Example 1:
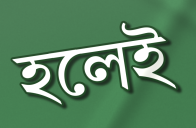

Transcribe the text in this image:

হলেই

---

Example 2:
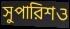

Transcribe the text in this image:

সুপারিশও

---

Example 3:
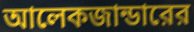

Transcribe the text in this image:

আলেকজান্ডারের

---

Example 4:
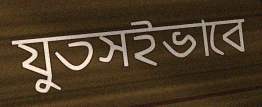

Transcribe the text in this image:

যুতসইভাবে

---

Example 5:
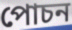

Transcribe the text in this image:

পোচন